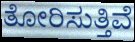
ತೋರಿಸುತ್ತಿವೆ